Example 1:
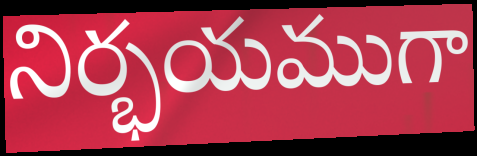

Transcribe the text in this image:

నిర్భయముగా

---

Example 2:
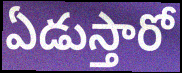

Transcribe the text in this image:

ఏడుస్తారో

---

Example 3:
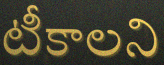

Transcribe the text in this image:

టీకాలని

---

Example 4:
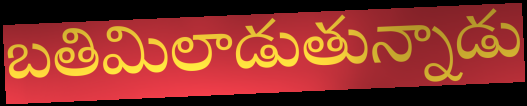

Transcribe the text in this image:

బతిమిలాడుతున్నాడు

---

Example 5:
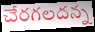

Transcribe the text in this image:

చేరగలదన్న